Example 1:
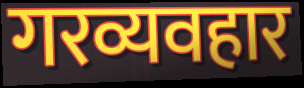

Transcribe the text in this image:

गरव्यवहार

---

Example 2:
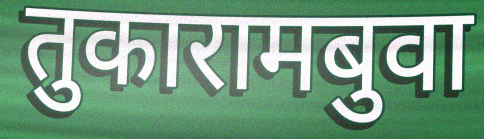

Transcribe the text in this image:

तुकारामबुवा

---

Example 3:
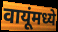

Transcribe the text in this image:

वायूंमध्ये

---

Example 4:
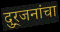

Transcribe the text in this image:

दुर्जनांचा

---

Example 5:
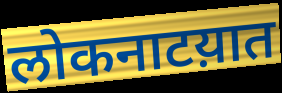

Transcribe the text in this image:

लोकनाटय़ात